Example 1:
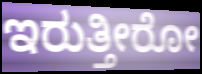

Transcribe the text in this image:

ಇರುತ್ತೀರೋ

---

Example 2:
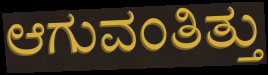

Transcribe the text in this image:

ಆಗುವಂತಿತ್ತು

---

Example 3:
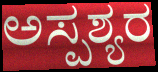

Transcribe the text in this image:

ಅಸ್ಪಶ್ಯರ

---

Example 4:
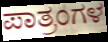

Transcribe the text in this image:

ಪಾತ್ರಂಗಳ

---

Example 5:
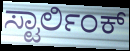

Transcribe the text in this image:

ಸ್ಟಾರ್ಲಿಂಕ್